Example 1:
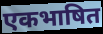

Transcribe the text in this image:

एकभाषित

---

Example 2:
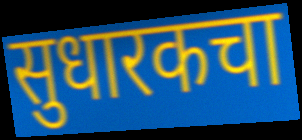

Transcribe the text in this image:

सुधारकचा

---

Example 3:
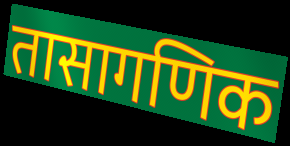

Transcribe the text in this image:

तासागणिक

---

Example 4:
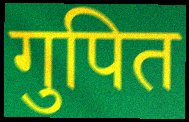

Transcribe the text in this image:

गुपित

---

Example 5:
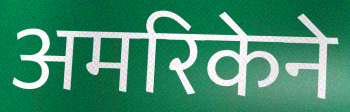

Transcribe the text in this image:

अमरिकेने